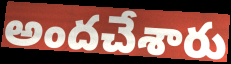
అందచేశారు